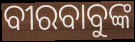
ବୀରବାବୁଙ୍କ